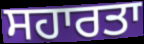
ਸਹਾਰਤਾ